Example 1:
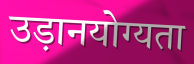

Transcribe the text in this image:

उड़ानयोग्यता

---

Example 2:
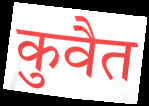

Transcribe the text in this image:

कुवैत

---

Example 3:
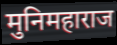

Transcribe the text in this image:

मुनिमहाराज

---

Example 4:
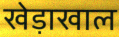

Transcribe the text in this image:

खेड़ाखाल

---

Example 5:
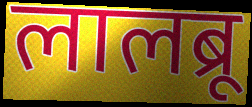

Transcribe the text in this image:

लालब्रू